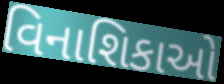
વિનાશિકાઓ